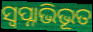
ସ୍ଵପ୍ନାଭିଭୂତ